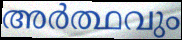
അർത്ഥവും